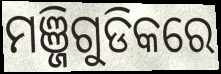
ମଞ୍ଜିଗୁଡିକରେ